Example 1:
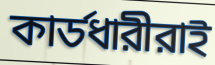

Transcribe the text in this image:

কার্ডধারীরাই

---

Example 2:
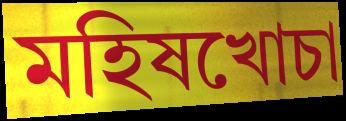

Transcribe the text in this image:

মহিষখোচা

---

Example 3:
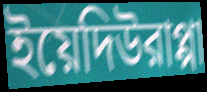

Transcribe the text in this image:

ইয়েদিউরাপ্পা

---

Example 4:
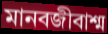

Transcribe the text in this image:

মানবজীবাশ্ম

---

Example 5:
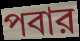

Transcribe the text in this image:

পবার